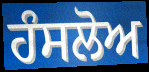
ਹੰਸਲੋਅ